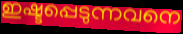
ഇഷ്ടപ്പെടുന്നവനെ